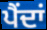
ਪੈਂਦਾਂ